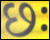
છઃ